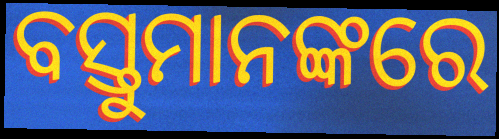
ବସ୍ତୁମାନଙ୍କରେ